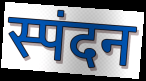
स्पंदन